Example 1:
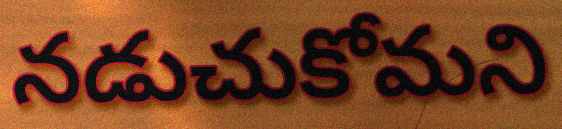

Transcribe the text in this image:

నడుచుకోమని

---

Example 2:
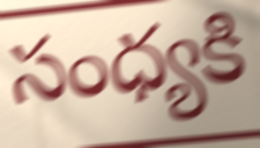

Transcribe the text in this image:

సంధ్యకి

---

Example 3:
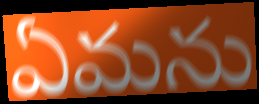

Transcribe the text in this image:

ఏమను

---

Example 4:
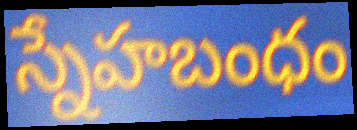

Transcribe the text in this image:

స్నేహబంధం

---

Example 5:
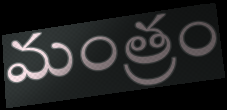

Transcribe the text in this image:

మంత్రం